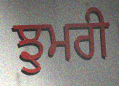
ਝੁਮਰੀ